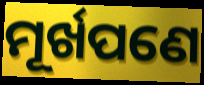
ମୂର୍ଖପଣେ